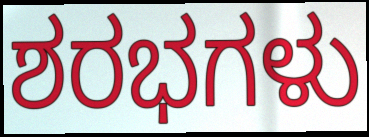
ಶರಭಗಳು